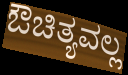
ಔಚಿತ್ಯವಲ್ಲ